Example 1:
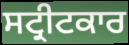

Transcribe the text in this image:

ਸਟ੍ਰੀਟਕਾਰ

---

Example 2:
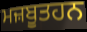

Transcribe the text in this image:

ਮਜ਼ਬੂਤਹਨ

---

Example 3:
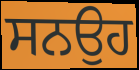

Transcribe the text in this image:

ਸਨਉਹ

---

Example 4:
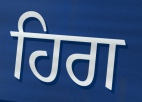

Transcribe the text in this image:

ਹਿਗ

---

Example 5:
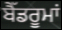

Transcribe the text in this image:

ਬੈੱਡਰੂਮਾਂ